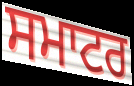
ਸਮਾਟਰ